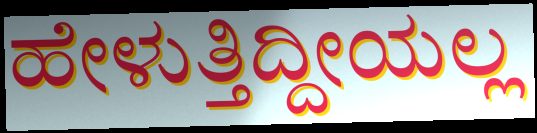
ಹೇಳುತ್ತಿದ್ದೀಯಲ್ಲ